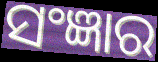
ସଂଜ୍ଞାର